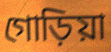
গোড়িয়া